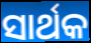
ସାର୍ଥକ